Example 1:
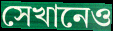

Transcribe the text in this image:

সেখানেও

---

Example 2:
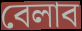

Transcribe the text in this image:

বেলাব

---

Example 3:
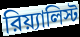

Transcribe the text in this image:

রিয়্যালিস্ট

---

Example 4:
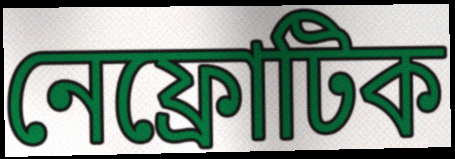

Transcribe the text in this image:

নেফ্রোটিক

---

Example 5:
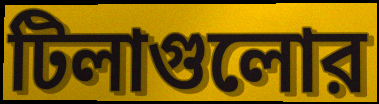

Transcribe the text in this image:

টিলাগুলোর